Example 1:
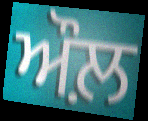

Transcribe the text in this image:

ਔਲ਼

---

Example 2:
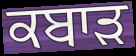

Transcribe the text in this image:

ਕਬਾਡ਼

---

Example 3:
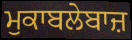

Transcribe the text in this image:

ਮੁਕਾਬਲੇਬਾਜ਼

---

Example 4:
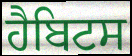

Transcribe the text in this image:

ਹੈਬਿਟਸ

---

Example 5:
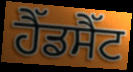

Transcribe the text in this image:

ਹੈੱਡਸੈੱਟ